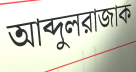
আব্দুলরাজাক